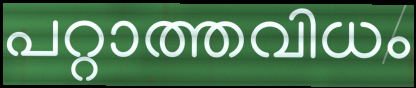
പറ്റാത്തവിധം